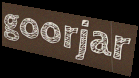
goorjar